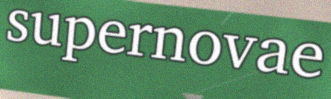
supernovae